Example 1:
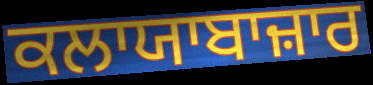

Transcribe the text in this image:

ਕਲਾਯਾਬਾਜ਼ਾਰ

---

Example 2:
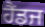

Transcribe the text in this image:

ਹੈਂਡਜ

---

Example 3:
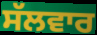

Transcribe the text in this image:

ਸੱਲਵਾਰ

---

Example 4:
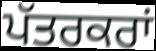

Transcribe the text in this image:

ਪੱਤਰਕਰਾਂ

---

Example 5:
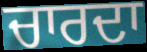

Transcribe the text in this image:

ਚਾਰਦਾ